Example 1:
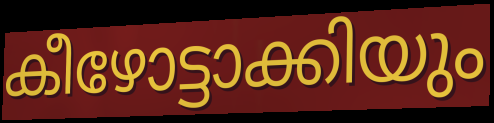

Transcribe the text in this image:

കീഴോട്ടാക്കിയും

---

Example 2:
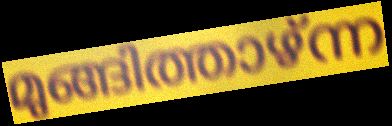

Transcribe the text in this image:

മുങ്ങിത്താഴ്ന്ന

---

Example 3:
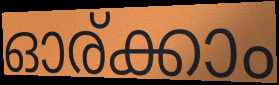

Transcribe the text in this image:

ഓര്ക്കാം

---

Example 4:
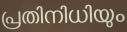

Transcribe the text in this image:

പ്രതിനിധിയും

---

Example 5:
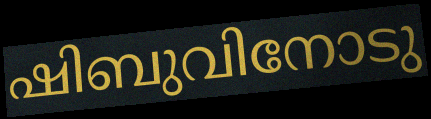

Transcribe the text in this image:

ഷിബുവിനോടു